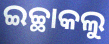
ଇଚ୍ଛାକଲୁ